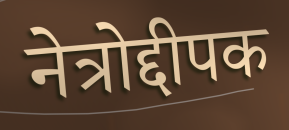
नेत्रोद्दीपक